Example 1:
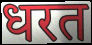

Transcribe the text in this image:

धरत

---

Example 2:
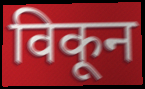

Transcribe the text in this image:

विकून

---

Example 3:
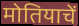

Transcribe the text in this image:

मोतियाचें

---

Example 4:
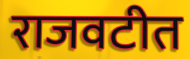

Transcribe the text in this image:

राजवटीत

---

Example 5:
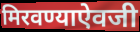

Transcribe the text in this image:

मिरवण्याऐवजी